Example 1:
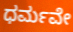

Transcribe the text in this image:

ಧರ್ಮವೇ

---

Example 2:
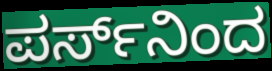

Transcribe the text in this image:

ಪರ್ಸ್‌ನಿಂದ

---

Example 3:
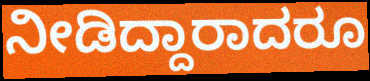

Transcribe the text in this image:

ನೀಡಿದ್ದಾರಾದರೂ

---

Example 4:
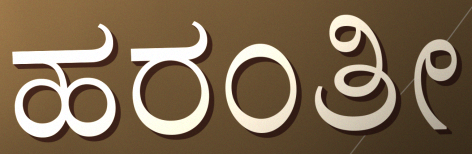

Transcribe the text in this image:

ಹರಂತೀ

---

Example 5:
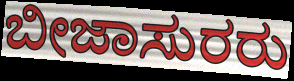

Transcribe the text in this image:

ಬೀಜಾಸುರರು